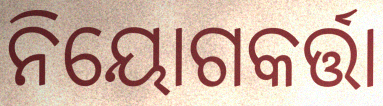
ନିୟୋଗକର୍ତ୍ତା